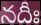
నదీః